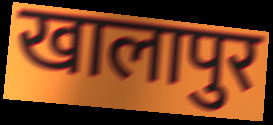
खालापुर